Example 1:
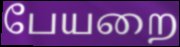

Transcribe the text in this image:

பேயறை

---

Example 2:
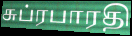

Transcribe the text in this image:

சுப்ரபாரதி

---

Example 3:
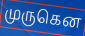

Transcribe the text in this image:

முருகென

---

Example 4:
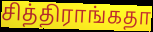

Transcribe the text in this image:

சித்திராங்கதா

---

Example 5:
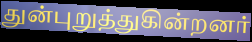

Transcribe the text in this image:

துன்புறுத்துகின்றனர்